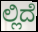
ಲ್ಲಿದೆ